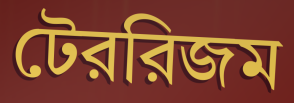
টেররিজম